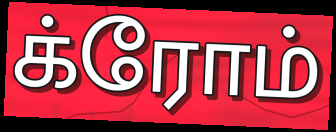
க்ரோம்